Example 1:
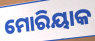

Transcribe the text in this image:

ମୋରିୟାକ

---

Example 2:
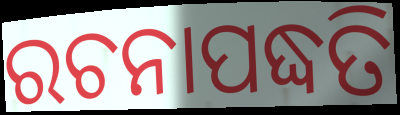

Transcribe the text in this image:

ରଚନାପଦ୍ଧତି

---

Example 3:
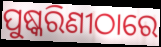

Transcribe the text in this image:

ପୁଷ୍କରିଣୀଠାରେ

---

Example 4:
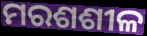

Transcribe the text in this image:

ମରଶଶୀଳ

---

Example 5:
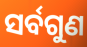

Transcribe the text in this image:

ସର୍ବଗୁଣ